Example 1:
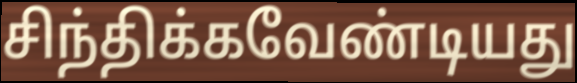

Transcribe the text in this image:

சிந்திக்கவேண்டியது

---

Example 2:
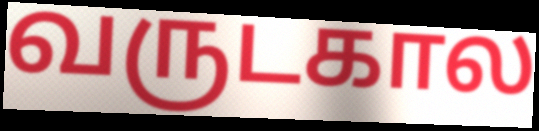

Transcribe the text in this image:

வருடகால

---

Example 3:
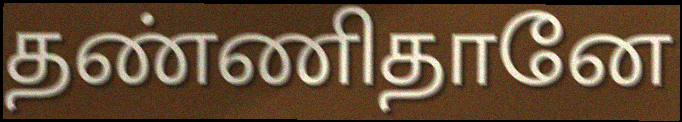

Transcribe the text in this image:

தண்ணிதானே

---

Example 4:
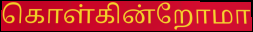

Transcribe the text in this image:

கொள்கின்றோமா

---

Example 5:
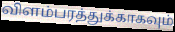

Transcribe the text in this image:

விளம்பரத்துக்காகவும்